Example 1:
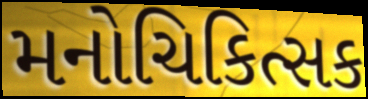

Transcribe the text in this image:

મનોચિકિત્સક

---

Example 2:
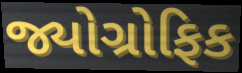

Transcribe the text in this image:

જ્યોગ્રોફિક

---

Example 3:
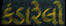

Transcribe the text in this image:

કંડારેલો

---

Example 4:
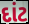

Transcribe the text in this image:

દાંટ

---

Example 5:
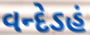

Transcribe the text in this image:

વન્દેઽહં